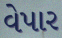
વેપાર